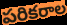
పరికరాల